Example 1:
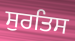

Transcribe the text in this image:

ਸੁਰਤਿਸ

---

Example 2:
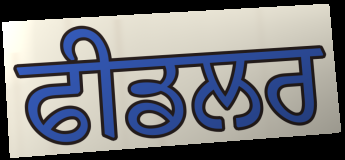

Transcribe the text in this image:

ਫੀਡਲਰ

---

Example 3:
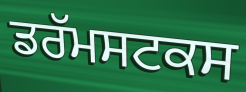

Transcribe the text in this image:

ਡਰੱਮਸਟਕਸ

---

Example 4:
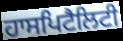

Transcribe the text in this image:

ਹਾਸਪਿਟੈਲਿਟੀ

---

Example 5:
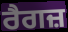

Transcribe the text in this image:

ਰੈਗਜ਼